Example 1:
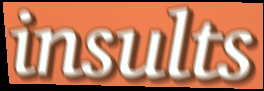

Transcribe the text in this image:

insults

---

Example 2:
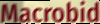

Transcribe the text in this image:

Macrobid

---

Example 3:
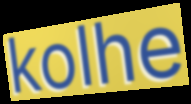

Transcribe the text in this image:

kolhe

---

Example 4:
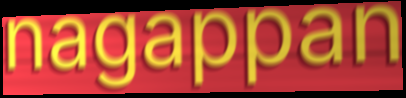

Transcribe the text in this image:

nagappan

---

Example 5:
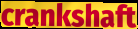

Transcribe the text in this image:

crankshaft